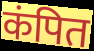
कंपित